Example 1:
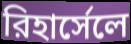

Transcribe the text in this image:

রিহার্সেলে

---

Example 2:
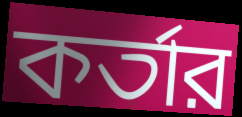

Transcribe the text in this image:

কর্তার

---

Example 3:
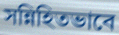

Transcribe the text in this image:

সন্নিহিতভাবে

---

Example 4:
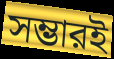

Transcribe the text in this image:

সম্ভারই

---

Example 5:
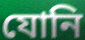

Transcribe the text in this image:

যোনি